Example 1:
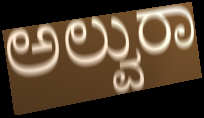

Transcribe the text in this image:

ಅಲ್ವುರಾ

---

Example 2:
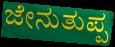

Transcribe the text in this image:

ಜೇನುತುಪ್ಪ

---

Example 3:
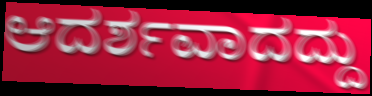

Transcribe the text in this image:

ಆದರ್ಶವಾದದ್ದು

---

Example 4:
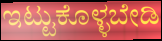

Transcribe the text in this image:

ಇಟ್ಟುಕೊಳ್ಳಬೇಡಿ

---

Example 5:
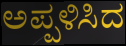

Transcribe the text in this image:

ಅಪ್ಪಳಿಸಿದ